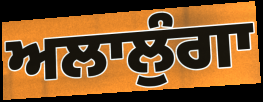
ਅਲਾਲੁੰਗਾ